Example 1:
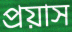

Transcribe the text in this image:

প্ৰয়াস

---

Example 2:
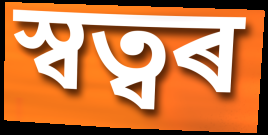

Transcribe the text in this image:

স্বত্বৰ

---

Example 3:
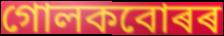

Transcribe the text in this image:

গোলকবোৰৰ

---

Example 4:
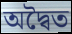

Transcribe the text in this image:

অদ্বৈত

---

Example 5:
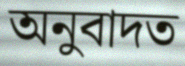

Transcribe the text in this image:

অনুবাদত